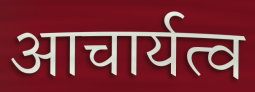
आचार्यत्व